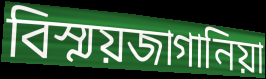
বিস্ময়জাগানিয়া